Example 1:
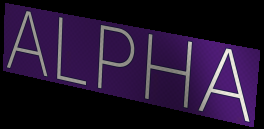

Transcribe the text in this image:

ALPHA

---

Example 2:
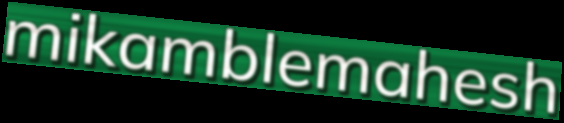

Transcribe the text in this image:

mikamblemahesh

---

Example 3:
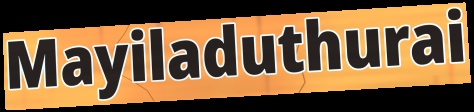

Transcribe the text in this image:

Mayiladuthurai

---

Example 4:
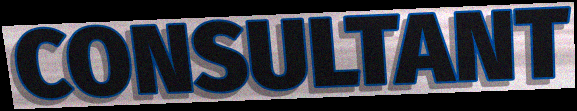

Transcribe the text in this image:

CONSULTANT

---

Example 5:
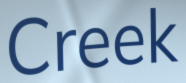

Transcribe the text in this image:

Creek